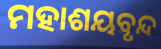
ମହାଶୟବୃନ୍ଦ